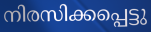
നിരസിക്കപ്പെട്ടു